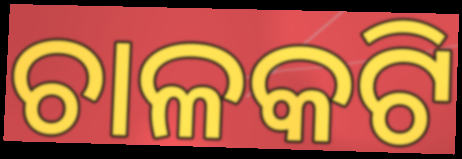
ଚାଳକଟି